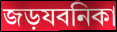
জড়যবনিকা